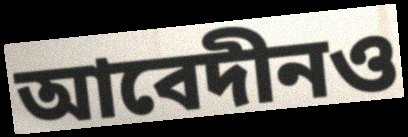
আবেদীনও